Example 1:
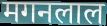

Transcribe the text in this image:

मगनलाल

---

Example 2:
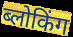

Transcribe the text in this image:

ब्लोकिंग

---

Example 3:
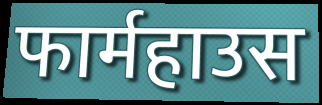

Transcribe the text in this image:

फार्महाउस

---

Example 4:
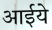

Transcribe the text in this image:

आईये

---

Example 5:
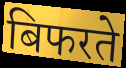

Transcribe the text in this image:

बिफरते